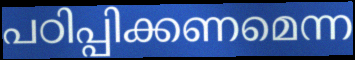
പഠിപ്പിക്കണമെന്ന